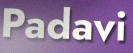
Padavi